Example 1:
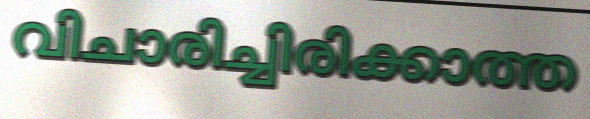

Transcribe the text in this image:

വിചാരിച്ചിരിക്കാത്ത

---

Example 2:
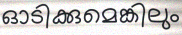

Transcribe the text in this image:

ഓടിക്കുമെങ്കിലും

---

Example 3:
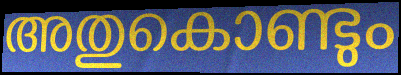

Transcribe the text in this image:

അതുകൊണ്ടും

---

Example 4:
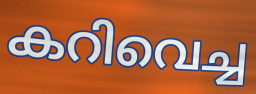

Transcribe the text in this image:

കറിവെച്ച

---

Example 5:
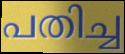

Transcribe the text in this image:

പതിച്ച